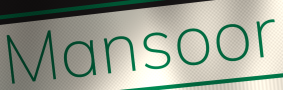
Mansoor